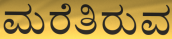
ಮರೆತಿರುವ